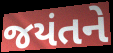
જયંતને